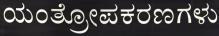
ಯಂತ್ರೋಪಕರಣಗಳು